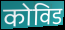
कोविड